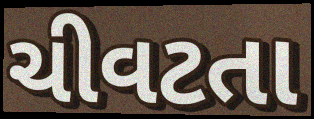
ચીવટતા